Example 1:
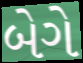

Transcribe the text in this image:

બેગે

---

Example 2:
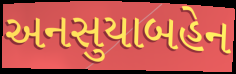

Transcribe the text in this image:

અનસુયાબહેન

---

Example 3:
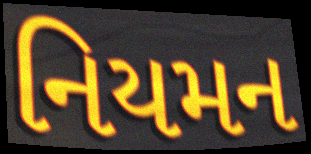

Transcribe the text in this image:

નિયમન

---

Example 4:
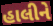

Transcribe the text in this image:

હાલીને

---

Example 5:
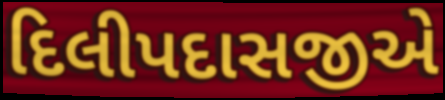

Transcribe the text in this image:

દિલીપદાસજીએ